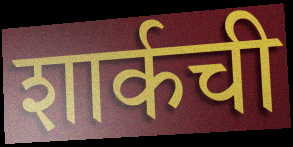
शार्कची